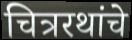
चित्ररथांचे